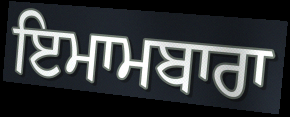
ਇਮਾਮਬਾਰਾ